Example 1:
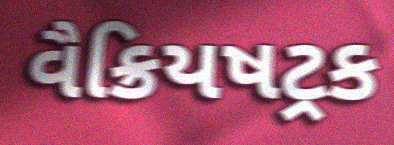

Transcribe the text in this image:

વૈક્રિયષટ્રક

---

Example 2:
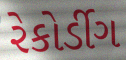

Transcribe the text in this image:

રેકોર્ડીગ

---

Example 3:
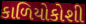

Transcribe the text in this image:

કાળિયોકોશી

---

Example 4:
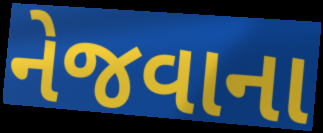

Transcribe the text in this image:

નેજવાના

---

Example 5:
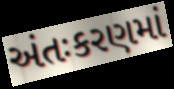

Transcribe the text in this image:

અંતઃકરણમાં